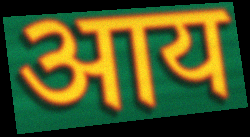
आय